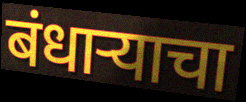
बंधार्‍याचा